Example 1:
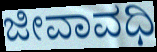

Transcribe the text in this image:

ಜೀವಾವಧಿ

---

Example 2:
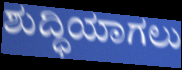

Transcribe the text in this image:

ಶುದ್ಧಿಯಾಗಲು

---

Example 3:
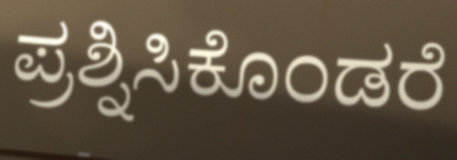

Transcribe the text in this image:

ಪ್ರಶ್ನಿಸಿಕೊಂಡರೆ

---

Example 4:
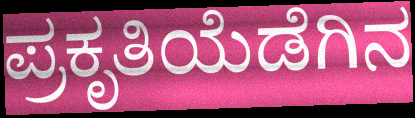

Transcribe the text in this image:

ಪ್ರಕೃತಿಯೆಡೆಗಿನ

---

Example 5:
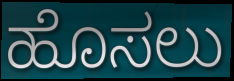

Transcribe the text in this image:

ಹೊಸಲು